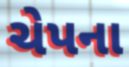
ચેપના